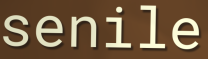
senile